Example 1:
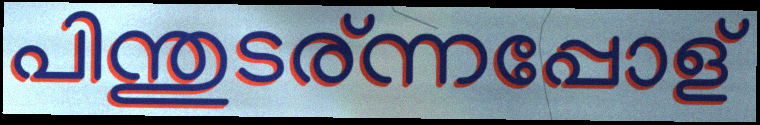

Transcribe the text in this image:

പിന്തുടര്ന്നപ്പോള്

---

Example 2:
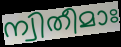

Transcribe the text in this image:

ന്വിതീമാഃ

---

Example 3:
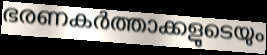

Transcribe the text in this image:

ഭരണകർത്താക്കളുടെയും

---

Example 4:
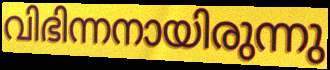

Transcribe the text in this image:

വിഭിന്നനായിരുന്നു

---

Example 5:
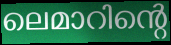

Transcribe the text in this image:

ലെമാറിന്റെ